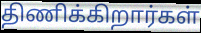
திணிக்கிறார்கள்